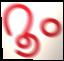
റൂം